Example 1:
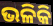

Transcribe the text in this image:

ଭଳିକି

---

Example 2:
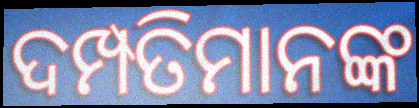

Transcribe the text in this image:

ଦମ୍ପତିମାନଙ୍କ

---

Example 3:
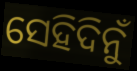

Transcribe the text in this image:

ସେହିଦିନୁଁ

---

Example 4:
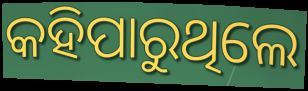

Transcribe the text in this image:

କହିପାରୁଥିଲେ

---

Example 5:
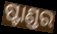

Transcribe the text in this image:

ଷ୍ଟାଣ୍ଡର